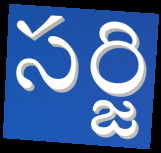
సర్జి